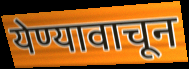
येण्यावाचून